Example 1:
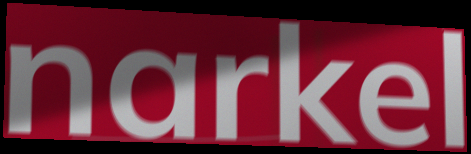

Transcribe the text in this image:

narkel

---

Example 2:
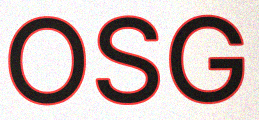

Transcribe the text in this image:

OSG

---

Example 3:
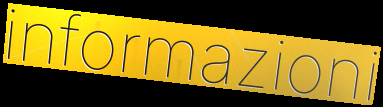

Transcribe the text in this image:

informazioni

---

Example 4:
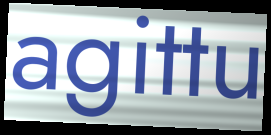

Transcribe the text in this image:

agittu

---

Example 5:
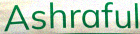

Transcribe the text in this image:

Ashraful